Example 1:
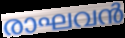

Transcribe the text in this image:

രാഘവൻ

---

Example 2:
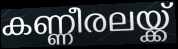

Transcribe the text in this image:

കണ്ണീരലയ്ക്ക്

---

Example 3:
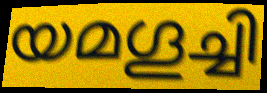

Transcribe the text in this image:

യമഗൂച്ചി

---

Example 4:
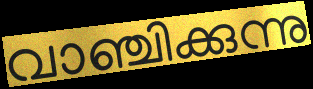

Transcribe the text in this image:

വാഞ്ചിക്കുന്നു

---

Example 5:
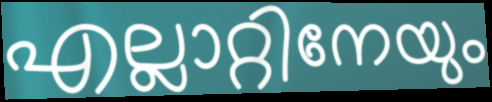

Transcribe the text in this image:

എല്ലാറ്റിനേയും